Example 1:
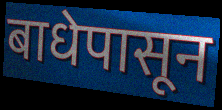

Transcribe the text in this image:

बाधेपासून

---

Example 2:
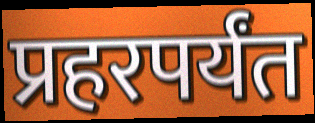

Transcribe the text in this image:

प्रहरपर्यंत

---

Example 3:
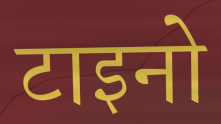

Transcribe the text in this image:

टाइनो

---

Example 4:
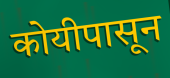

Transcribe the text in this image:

कोयीपासून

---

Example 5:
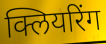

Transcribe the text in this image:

क्लियरिंग